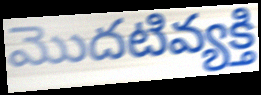
మొదటివ్యక్తి